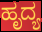
ಹೃದ್ಯ